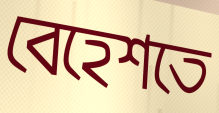
বেহেশতে